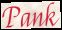
Pank